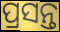
ପ୍ରସନ୍ତ